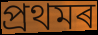
প্ৰথমৰ